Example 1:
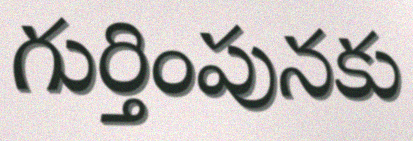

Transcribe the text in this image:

గుర్తింపునకు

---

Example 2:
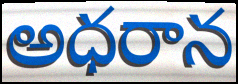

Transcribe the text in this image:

అధరాన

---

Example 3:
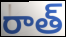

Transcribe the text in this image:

రాత్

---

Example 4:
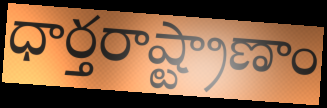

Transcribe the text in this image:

ధార్తరాష్ట్రాణాం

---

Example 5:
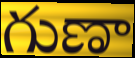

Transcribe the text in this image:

గుణా